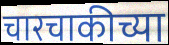
चारचाकीच्या